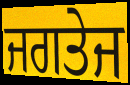
ਜਗਤੇਜ